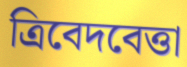
ত্রিবেদবেত্তা